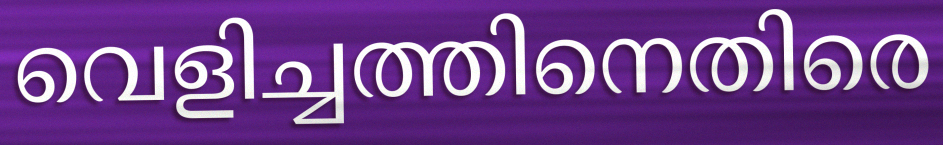
വെളിച്ചത്തിനെതിരെ